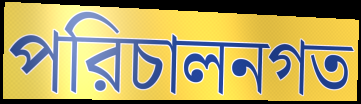
পরিচালনগত